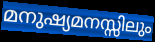
മനുഷ്യമനസ്സിലും